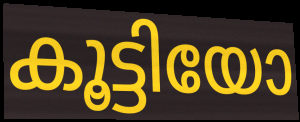
കൂട്ടിയോ